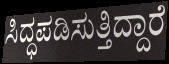
ಸಿದ್ಧಪಡಿಸುತ್ತಿದ್ದಾರೆ